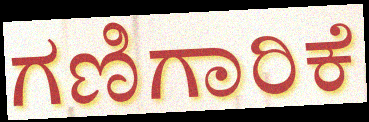
ಗಣಿಗಾರಿಕೆ